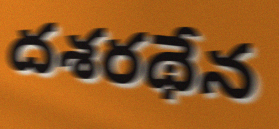
దశరథేన